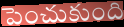
పెంచుకుంది